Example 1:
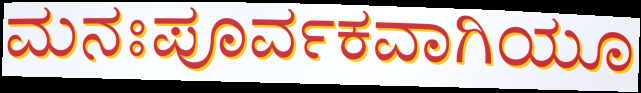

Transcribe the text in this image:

ಮನಃಪೂರ್ವಕವಾಗಿಯೂ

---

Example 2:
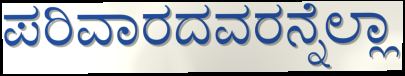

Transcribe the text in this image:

ಪರಿವಾರದವರನ್ನೆಲ್ಲಾ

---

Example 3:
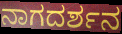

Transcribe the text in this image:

ನಾಗದರ್ಶನ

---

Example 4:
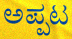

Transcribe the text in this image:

ಅಪ್ಪಟ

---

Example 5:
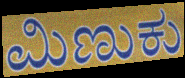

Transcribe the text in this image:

ಮಿಣುಕು